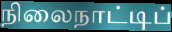
நிலைநாட்டிப்